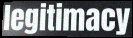
legitimacy